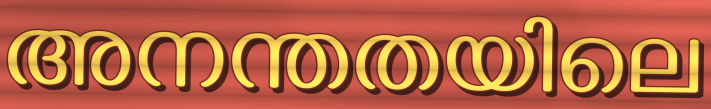
അനന്തതയിലെ